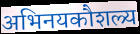
अभिनयकौशल्य